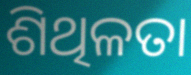
ଶିଥିଳତା